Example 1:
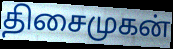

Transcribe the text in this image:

திசைமுகன்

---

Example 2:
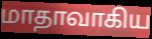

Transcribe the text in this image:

மாதாவாகிய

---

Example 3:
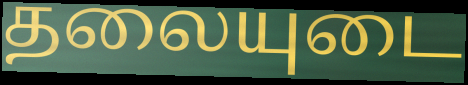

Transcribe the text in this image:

தலையுடை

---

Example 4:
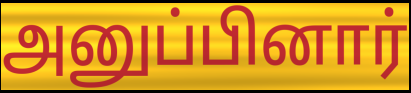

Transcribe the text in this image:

அனுப்பினார்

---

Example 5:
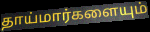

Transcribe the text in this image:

தாய்மார்களையும்